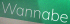
Wannabe